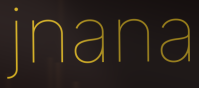
jnana